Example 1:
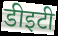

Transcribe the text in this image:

डीइटी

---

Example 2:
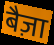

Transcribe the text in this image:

बैज़ा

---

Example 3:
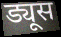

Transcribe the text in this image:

ड्यूस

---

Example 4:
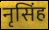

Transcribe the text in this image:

नृसिंह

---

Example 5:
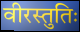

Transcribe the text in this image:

वीरस्तुतिः